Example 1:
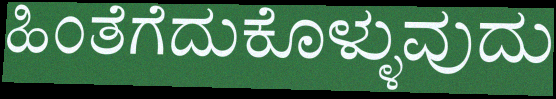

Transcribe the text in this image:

ಹಿಂತೆಗೆದುಕೊಳ್ಳುವುದು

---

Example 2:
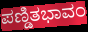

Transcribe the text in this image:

ಪಣ್ಡಿತಭಾವಂ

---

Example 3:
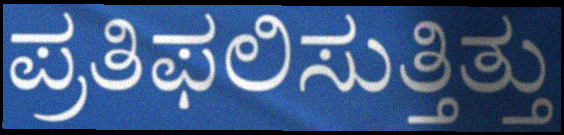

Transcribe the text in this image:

ಪ್ರತಿಫಲಿಸುತ್ತಿತ್ತು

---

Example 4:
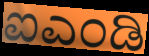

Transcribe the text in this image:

ಐಎಂಡಿ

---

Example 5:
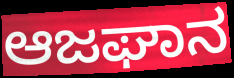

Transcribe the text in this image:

ಆಜಘಾನ